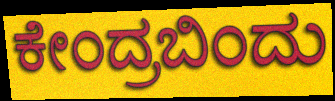
ಕೇಂದ್ರಬಿಂದು